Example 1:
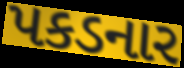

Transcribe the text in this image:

પકડનાર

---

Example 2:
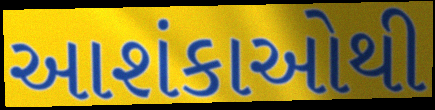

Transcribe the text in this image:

આશંકાઓથી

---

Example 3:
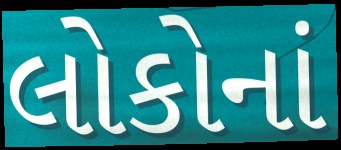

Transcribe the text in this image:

લોકોનાં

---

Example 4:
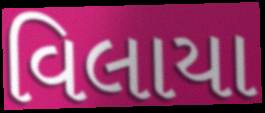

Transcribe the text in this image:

વિલાયા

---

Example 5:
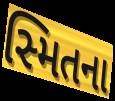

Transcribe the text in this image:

સ્મિતના